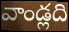
వాండ్లది